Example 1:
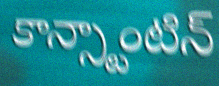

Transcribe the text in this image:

కాన్స్టాంటిన్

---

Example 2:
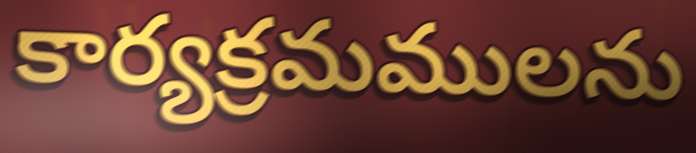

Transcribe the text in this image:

కార్యక్రమములను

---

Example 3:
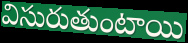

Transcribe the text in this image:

విసురుతుంటాయి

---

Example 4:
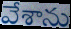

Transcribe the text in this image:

వేశాను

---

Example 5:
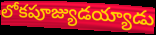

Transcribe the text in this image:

లోకపూజ్యుడయ్యాడు